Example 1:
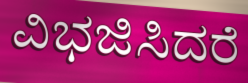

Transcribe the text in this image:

ವಿಭಜಿಸಿದರೆ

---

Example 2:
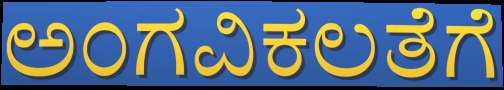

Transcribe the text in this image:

ಅಂಗವಿಕಲತೆಗೆ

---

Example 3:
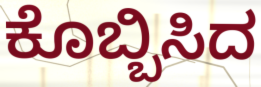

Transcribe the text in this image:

ಕೊಬ್ಬಿಸಿದ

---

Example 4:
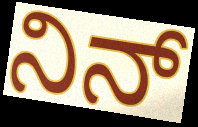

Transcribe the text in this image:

ನಿನ್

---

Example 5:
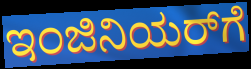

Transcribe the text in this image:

ಇಂಜಿನಿಯರ್‌ಗೆ